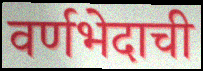
वर्णभेदाची